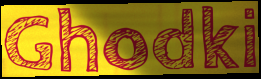
Ghodki